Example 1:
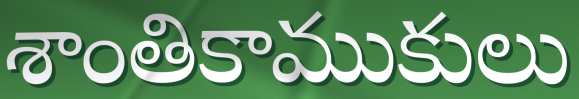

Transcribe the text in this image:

శాంతికాముకులు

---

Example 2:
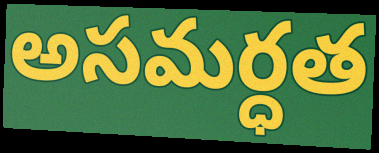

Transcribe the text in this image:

అసమర్ధత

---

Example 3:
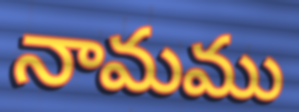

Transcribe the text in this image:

నామము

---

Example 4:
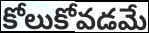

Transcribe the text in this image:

కోలుకోవడమే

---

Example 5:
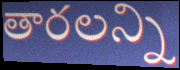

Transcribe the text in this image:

తారలన్ని